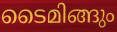
ടൈമിങ്ങും